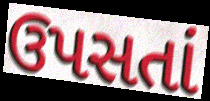
ઉપસતાં